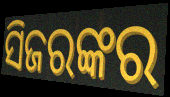
ସିଜରଙ୍କର